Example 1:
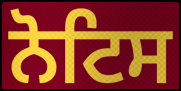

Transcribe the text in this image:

ਨੋਟਿਸ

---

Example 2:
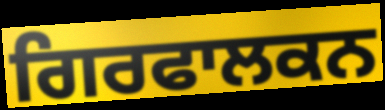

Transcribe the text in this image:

ਗਿਰਫਾਲਕਨ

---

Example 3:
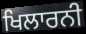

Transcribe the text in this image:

ਖਿਲਾਰਨੀ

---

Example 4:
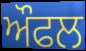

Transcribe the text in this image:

ਔਫਲ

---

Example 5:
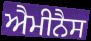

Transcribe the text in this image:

ਐਮੀਨੈਸ